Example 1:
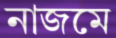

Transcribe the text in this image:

নাজমে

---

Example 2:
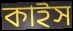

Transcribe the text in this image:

কাইস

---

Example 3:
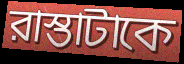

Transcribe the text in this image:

রাস্তাটাকে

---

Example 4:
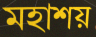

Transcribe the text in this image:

মহাশয়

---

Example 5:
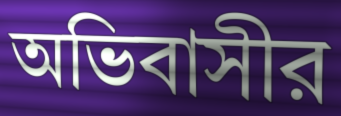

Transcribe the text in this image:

অভিবাসীর